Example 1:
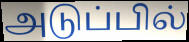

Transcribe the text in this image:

அடுப்பில்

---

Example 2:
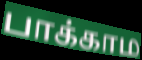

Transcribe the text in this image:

பாக்காம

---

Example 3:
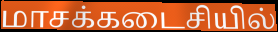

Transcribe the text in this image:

மாசக்கடைசியில்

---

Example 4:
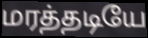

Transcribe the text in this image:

மரத்தடியே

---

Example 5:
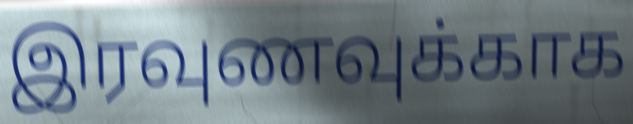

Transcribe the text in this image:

இரவுணவுக்காக